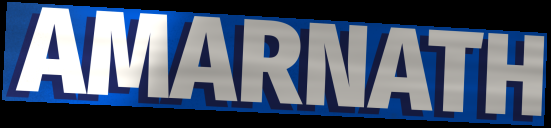
AMARNATH